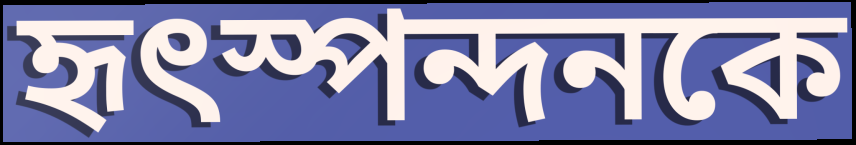
হৃৎস্পন্দনকে